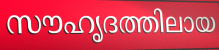
സൗഹൃദത്തിലായ